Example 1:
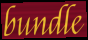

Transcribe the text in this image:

bundle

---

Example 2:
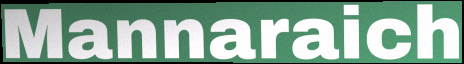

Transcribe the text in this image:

Mannaraich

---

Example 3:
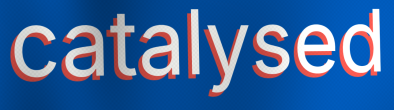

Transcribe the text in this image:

catalysed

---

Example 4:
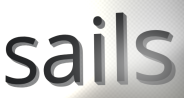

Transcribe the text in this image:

sails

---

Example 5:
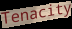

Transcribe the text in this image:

Tenacity